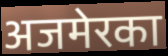
अजमेरका